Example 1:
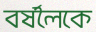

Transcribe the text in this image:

বৰ্ষলৈকে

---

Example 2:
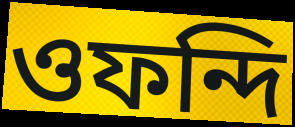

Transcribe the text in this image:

ওফন্দি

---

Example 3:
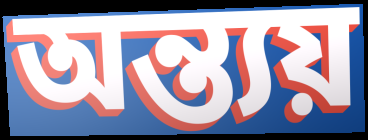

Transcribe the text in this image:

অন্ত্যয়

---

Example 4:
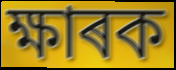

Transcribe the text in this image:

ক্ষাৰক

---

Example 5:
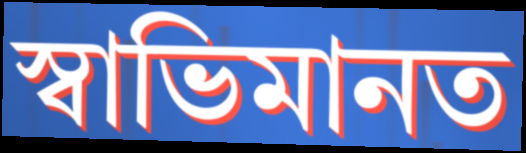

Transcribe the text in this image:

স্বাভিমানত